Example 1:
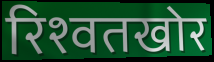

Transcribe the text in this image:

रिश्वतखोर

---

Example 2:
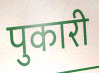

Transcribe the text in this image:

पुकारी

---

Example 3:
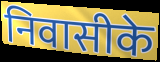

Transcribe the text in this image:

निवासीके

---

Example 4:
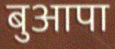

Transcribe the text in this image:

बुआपा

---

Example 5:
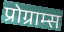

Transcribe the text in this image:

प्रोग्राम्स